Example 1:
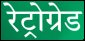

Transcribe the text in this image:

रेट्रोग्रेड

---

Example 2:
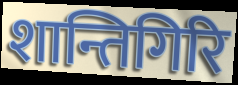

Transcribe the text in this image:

शान्तिगिरि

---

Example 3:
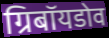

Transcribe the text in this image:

ग्रिबॉयडोव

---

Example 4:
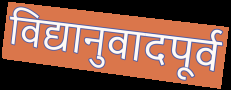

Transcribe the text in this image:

विद्यानुवादपूर्व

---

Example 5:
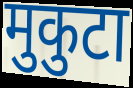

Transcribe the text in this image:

मुकुटा